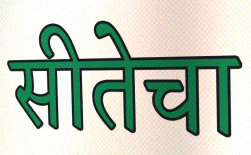
सीतेचा